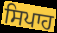
ਸਿਪਾਹ